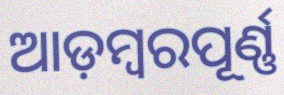
ଆଡ଼ମ୍ବରପୂର୍ଣ୍ଣ